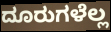
ದೂರುಗಳೆಲ್ಲ